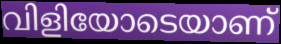
വിളിയോടെയാണ്